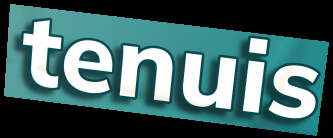
tenuis